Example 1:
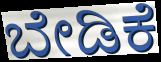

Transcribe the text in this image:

ಬೇಡಿಕೆ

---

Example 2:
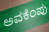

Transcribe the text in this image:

ಅವಕೆಂಪು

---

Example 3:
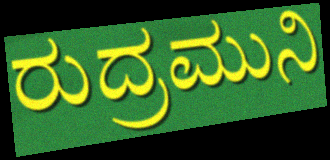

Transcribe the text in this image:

ರುದ್ರಮುನಿ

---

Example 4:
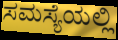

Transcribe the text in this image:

ಸಮಸ್ಯೆಯಲ್ಲಿ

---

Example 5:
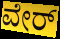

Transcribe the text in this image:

ವೇರ್